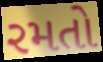
રમતો